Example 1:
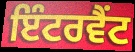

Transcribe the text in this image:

ਇੰਟਰਵੈਂਟ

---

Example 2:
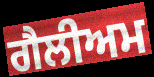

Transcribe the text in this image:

ਗੈਲੀਅਮ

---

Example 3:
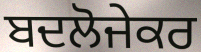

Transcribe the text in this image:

ਬਦਲੋਜੇਕਰ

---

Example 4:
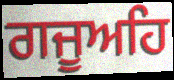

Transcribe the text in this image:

ਗਜੂਅਹਿ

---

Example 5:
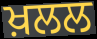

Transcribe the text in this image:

ਖ਼ਲਲ